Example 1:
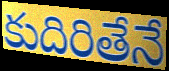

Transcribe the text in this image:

కుదిరితేనే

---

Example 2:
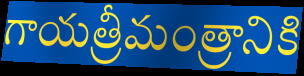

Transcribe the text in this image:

గాయత్రీమంత్రానికి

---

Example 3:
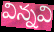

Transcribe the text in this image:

విన్నవి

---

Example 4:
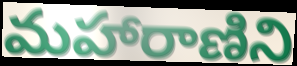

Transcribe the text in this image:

మహారాణిని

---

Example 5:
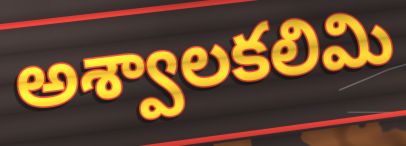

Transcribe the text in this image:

అశ్వాలకలిమి